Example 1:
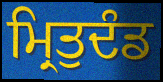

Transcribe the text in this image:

ਮ੍ਰਿਤੁਦੰਡ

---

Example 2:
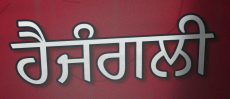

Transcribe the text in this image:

ਹੈਜੰਗਲੀ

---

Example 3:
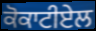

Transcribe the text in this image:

ਕੋਕਾਟੀਏਲ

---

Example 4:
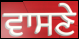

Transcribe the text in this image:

ਵਾਸਣੇ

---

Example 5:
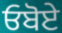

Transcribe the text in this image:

ਓਬੋਏ